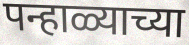
पन्हाळ्याच्या